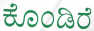
ಕೊಂಡಿರೆ